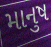
માનુષ